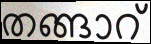
തങ്ങാറ്